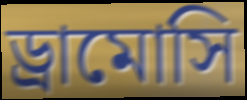
ড্রামোসি